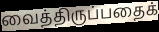
வைத்திருப்பதைக்